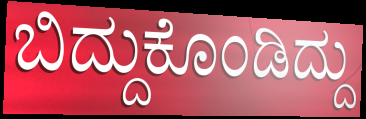
ಬಿದ್ದುಕೊಂಡಿದ್ದು